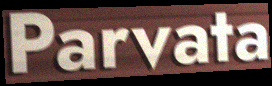
Parvata